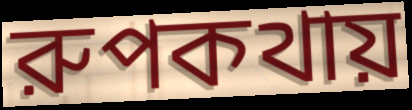
রুপকথায়